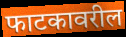
फाटकावरील